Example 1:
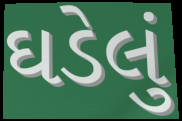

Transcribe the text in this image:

ઘડેલું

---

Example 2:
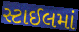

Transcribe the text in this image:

સ્ટાઈલમાં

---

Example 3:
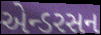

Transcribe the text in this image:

એન્ડરસન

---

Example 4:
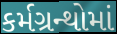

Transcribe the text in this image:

કર્મગ્રન્થોમાં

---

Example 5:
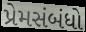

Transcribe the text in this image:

પ્રેમસંબંધો